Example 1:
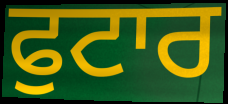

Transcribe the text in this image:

ਫੁਟਾਰ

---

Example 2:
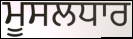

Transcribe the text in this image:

ਮੂਸਲਧਾਰ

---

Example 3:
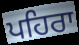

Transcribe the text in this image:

ਪਹਿਰਾ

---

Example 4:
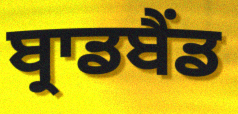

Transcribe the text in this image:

ਬ੍ਰਾਡਬੈਂਡ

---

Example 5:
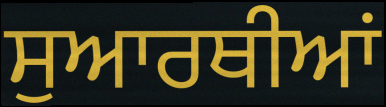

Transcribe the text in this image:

ਸੁਆਰਥੀਆਂ